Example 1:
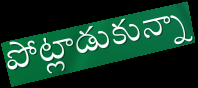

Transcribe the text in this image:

పోట్లాడుకున్నా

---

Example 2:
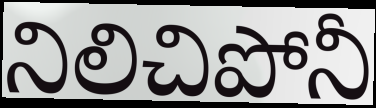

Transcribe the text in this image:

నిలిచిపోనీ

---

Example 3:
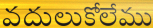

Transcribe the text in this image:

వదులుకోలేము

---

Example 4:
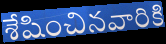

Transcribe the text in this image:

శేషించినవారికి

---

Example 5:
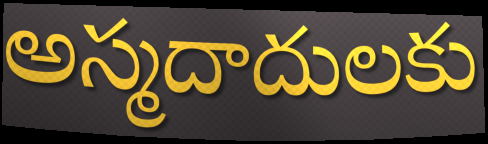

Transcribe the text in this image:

అస్మదాదులకు